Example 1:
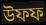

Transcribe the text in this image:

উফফ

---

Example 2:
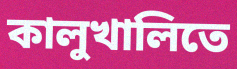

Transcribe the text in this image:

কালুখালিতে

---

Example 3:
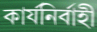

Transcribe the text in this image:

কার্যনির্বাহী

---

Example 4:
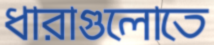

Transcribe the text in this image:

ধারাগুলোতে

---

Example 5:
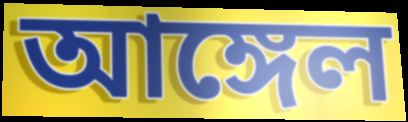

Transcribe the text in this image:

আঙ্গেল